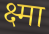
क्ष्मा